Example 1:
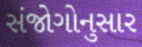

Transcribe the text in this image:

સંજોગોનુસાર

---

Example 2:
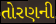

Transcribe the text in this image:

તોરણની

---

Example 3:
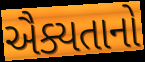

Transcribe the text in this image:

ઐક્યતાનો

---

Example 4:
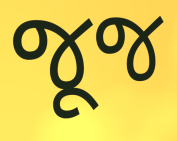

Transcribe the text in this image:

જૂજ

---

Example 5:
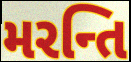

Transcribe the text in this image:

મરન્તિ